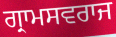
ਗ੍ਰਾਮਸਵਰਾਜ